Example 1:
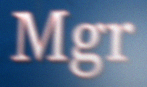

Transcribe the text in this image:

Mgr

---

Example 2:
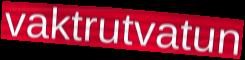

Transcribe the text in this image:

vaktrutvatun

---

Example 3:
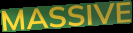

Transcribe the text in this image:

MASSIVE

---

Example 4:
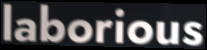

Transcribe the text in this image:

laborious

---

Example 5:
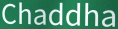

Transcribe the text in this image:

Chaddha